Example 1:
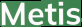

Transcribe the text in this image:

Metis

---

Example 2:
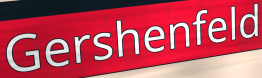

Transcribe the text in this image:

Gershenfeld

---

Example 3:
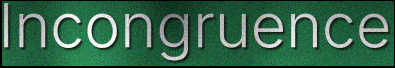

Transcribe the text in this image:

Incongruence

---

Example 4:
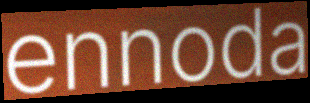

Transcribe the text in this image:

ennoda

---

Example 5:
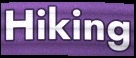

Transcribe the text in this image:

Hiking